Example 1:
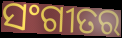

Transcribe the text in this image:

ସଂଗୀତର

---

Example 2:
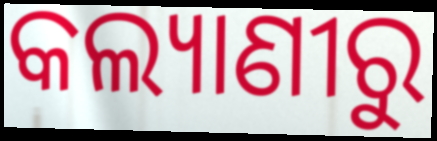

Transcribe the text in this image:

କଲ୍ୟାଣୀରୁ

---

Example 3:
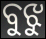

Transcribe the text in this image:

ବୁଝୁ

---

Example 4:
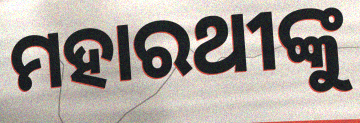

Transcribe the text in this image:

ମହାରଥୀଙ୍କୁ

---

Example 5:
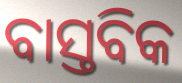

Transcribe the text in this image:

ବାସ୍ତବିକ